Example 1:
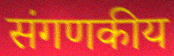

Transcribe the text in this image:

संगणकीय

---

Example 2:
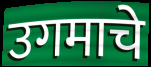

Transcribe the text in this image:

उगमाचे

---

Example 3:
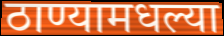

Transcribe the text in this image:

ठाण्यामधल्या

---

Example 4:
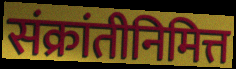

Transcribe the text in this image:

संक्रांतीनिमित्त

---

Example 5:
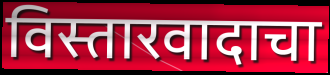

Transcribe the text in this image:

विस्तारवादाचा